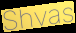
Shvas